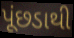
પૂંછડાથી